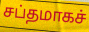
சப்தமாகச்